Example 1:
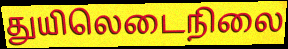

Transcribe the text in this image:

துயிலெடைநிலை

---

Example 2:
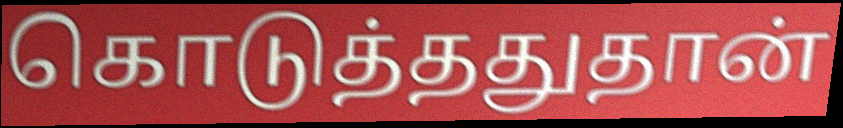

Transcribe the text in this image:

கொடுத்ததுதான்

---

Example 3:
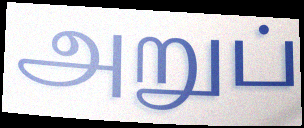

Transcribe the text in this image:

அறுப்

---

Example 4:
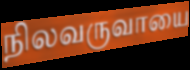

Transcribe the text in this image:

நிலவருவாயை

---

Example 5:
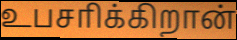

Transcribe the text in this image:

உபசரிக்கிறான்